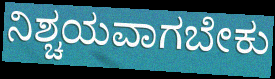
ನಿಶ್ಚಯವಾಗಬೇಕು